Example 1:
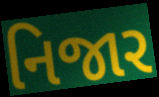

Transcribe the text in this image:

નિજાર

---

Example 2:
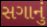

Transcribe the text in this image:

સગાનું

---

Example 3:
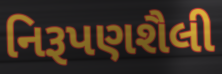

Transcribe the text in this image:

નિરૂપણશૈલી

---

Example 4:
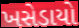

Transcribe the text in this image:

ખસેડાયો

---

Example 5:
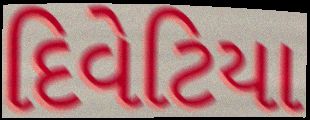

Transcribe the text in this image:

દિવેટિયા